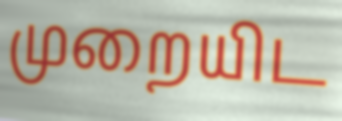
முறையிட